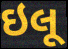
ઇલૂ